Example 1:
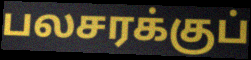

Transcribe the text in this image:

பலசரக்குப்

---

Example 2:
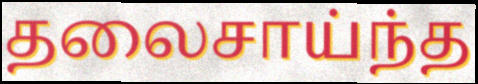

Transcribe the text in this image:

தலைசாய்ந்த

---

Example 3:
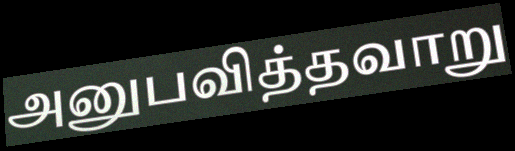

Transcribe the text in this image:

அனுபவித்தவாறு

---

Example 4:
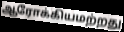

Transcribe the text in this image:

ஆரோக்கியமற்றது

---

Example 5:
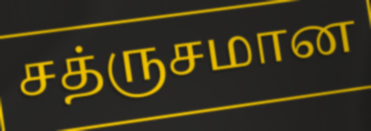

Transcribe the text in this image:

சத்ருசமான